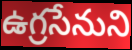
ఉగ్రసేనుని